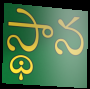
స్థాన